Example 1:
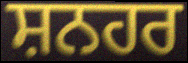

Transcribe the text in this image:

ਸ਼ਨਹਰ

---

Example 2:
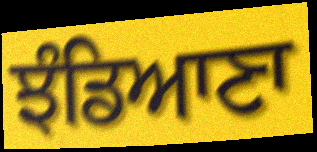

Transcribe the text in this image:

ਝੰਡਿਆਣਾ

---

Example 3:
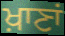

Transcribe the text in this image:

ਖ਼ਾਣਾਂ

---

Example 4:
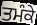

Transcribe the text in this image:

ਤਮੰਕੇ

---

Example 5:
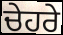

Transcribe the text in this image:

ਚੇਹਰੇ